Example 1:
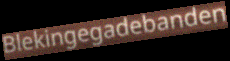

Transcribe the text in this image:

Blekingegadebanden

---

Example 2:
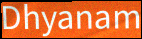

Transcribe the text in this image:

Dhyanam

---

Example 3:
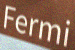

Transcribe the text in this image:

Fermi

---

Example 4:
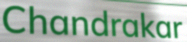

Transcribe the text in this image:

Chandrakar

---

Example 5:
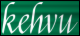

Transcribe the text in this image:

kehvu